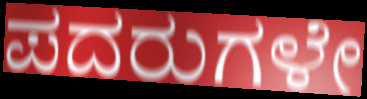
ಪದರುಗಳೇ